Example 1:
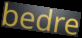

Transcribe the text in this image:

bedre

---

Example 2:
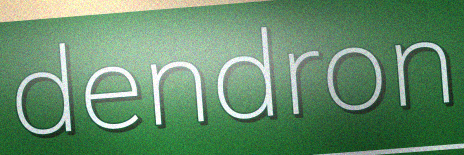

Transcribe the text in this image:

dendron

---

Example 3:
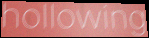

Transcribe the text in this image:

hollowing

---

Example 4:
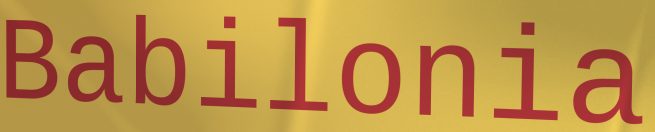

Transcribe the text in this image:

Babilonia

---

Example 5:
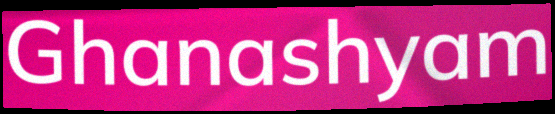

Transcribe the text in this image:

Ghanashyam